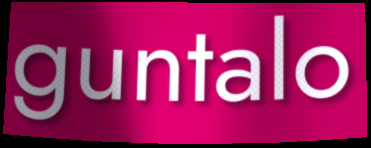
guntalo